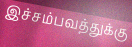
இச்சம்பவத்துக்கு